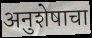
अनुशेषाचा